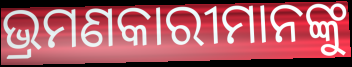
ଭ୍ରମଣକାରୀମାନଙ୍କୁ